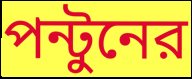
পন্টুনের